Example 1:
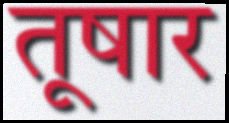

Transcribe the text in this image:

तूषार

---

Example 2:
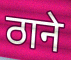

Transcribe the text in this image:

ठाने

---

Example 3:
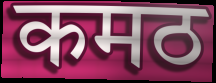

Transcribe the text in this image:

कमठ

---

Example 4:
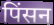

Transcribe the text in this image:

पिंसन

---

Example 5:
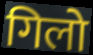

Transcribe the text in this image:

गिलो